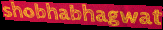
shobhabhagwat